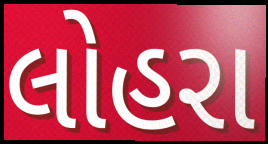
લોહરા